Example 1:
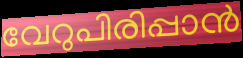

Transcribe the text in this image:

വേറുപിരിപ്പാൻ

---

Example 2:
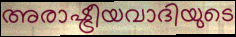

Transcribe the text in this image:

അരാഷ്ട്രീയവാദിയുടെ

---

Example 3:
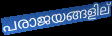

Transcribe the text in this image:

പരാജയങ്ങളില്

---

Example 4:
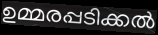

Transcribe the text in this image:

ഉമ്മരപ്പടിക്കൽ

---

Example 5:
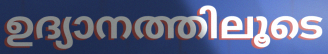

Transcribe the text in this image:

ഉദ്യാനത്തിലൂടെ